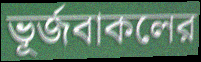
ভূর্জবাকলের